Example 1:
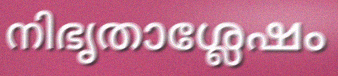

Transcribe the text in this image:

നിഭൃതാശ്ലേഷം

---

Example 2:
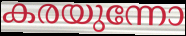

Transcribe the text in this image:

കരയുന്നോ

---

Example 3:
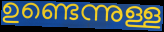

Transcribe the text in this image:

ഉണ്ടെന്നുള്ള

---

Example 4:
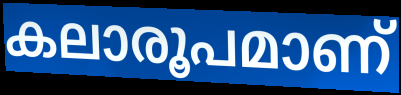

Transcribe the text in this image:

കലാരൂപമാണ്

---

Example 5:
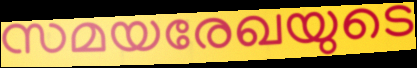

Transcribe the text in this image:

സമയരേഖയുടെ